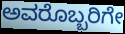
ಅವರೊಬ್ಬರಿಗೇ